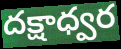
దక్షాధ్వర